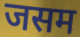
जसम